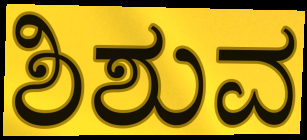
ಶಿಶುವ